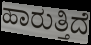
ಹಾರುತ್ತಿದೆ